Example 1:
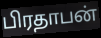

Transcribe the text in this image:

பிரதாபன்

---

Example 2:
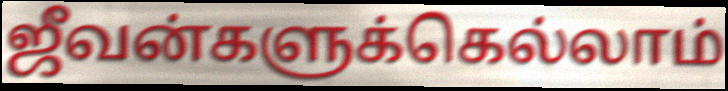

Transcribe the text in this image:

ஜீவன்களுக்கெல்லாம்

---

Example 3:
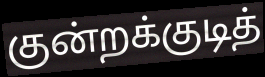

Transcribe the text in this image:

குன்றக்குடித்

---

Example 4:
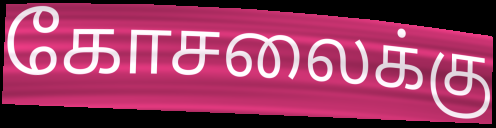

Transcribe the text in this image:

கோசலைக்கு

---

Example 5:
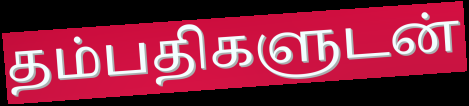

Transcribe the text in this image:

தம்பதிகளுடன்